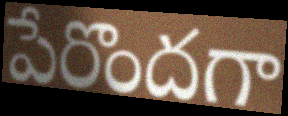
పేరొందగా